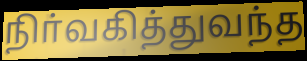
நிர்வகித்துவந்த